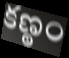
కణ్ఠం